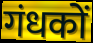
गंधकों